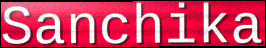
Sanchika